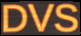
DVS